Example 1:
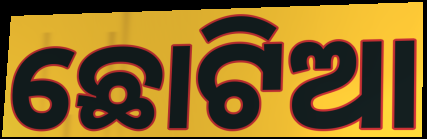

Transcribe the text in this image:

ଛୋଟିଆ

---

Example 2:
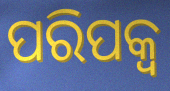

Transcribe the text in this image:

ପରିପକ୍ବ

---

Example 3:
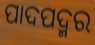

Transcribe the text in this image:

ପାଦପଦ୍ମର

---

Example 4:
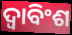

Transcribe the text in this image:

ଦ୍ୱାବିଂଶ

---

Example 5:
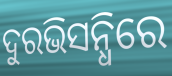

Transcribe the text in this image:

ଦୁରଭିସନ୍ଧିରେ